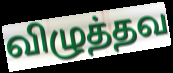
விழுத்தவ